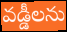
వడ్డీలను